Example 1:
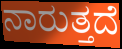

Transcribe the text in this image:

ನಾರುತ್ತದೆ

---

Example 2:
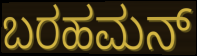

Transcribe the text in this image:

ಬರಹಮನ್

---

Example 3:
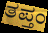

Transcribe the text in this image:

ತಪ್ತಂ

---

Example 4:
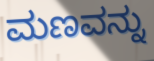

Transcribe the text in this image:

ಮಣವನ್ನು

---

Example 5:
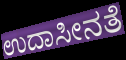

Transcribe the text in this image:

ಉದಾಸೀನತೆ